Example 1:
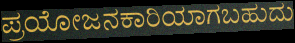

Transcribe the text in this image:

ಪ್ರಯೋಜನಕಾರಿಯಾಗಬಹುದು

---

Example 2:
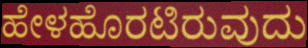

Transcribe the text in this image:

ಹೇಳಹೊರಟಿರುವುದು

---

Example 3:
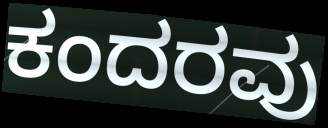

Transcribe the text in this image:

ಕಂದರವು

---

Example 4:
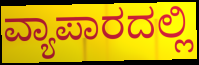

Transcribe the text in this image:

ವ್ಯಾಪಾರದಲ್ಲಿ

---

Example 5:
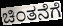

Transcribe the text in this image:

ಚಿಂತನೆಗೆ